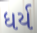
ધર્ય